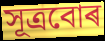
সূত্ৰবোৰ